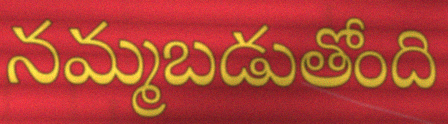
నమ్మబడుతోంది